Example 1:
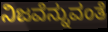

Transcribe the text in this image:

ನಿಜವೆನ್ನುವಂತೆ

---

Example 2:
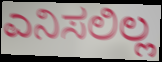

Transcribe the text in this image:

ಎನಿಸಲಿಲ್ಲ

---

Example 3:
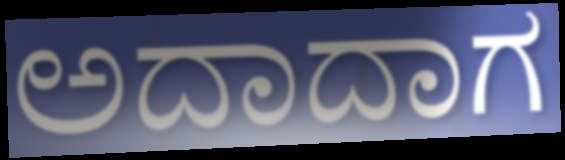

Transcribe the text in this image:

ಅದಾದಾಗ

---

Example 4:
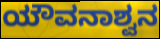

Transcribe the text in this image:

ಯೌವನಾಶ್ವನ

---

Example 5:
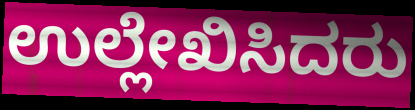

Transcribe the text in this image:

ಉಲ್ಲೇಖಿಸಿದರು